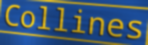
Collines